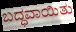
ಬದ್ಧವಾಯಿತು